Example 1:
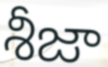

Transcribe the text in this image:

శీజా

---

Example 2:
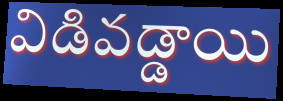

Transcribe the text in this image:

విడివడ్డాయి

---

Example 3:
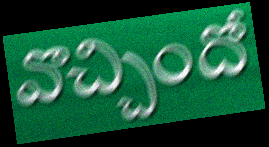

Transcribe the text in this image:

వొచ్చిందో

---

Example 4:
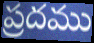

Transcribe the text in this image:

ప్రదము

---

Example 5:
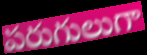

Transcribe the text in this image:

పరుగులుగా